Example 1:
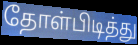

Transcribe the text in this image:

தோள்பிடித்து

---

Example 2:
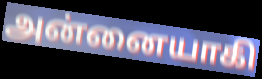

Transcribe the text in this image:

அன்னையாகி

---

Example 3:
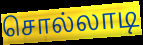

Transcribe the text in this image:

சொல்லாடி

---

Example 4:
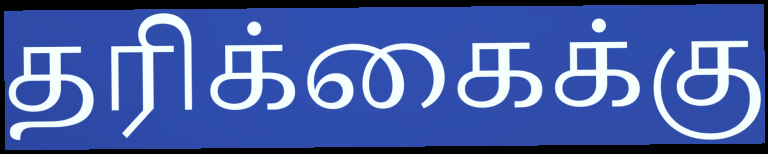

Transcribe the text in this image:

தரிக்கைக்கு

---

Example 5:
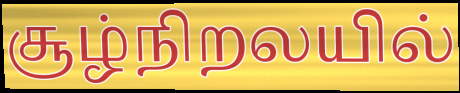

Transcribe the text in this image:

சூழ்நிறலயில்